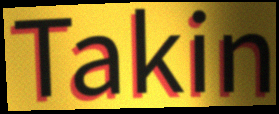
Takin